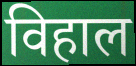
विहाल